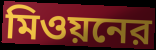
মিওয়নের